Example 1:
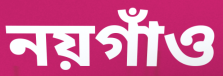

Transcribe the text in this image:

নয়গাঁও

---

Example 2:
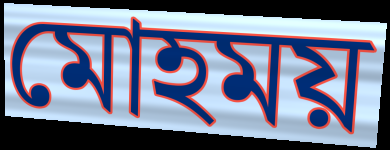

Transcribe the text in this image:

মোহময়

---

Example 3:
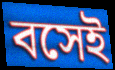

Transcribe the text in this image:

বসেই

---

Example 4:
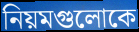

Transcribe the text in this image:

নিয়মগুলোকে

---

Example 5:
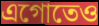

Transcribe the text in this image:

এগোতেও